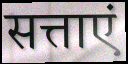
सत्ताएं